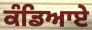
ਕੰਡਿਆਏ